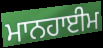
ਮਾਨਹਾਈਮ